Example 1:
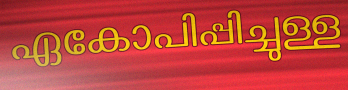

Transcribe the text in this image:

ഏകോപിപ്പിച്ചുള്ള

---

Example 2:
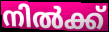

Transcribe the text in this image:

നിൽക്ക്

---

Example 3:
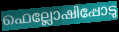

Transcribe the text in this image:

ഫെല്ലോഷിപ്പോടു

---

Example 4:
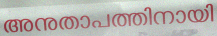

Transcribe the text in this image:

അനുതാപത്തിനായി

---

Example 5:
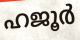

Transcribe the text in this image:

ഹജൂർ